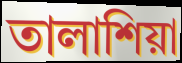
তালাশিয়া